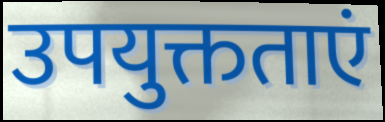
उपयुक्तताएं